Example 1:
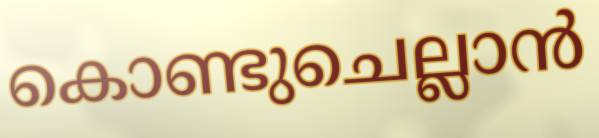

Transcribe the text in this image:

കൊണ്ടുചെല്ലാൻ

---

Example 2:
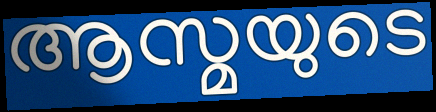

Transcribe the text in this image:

ആസ്മയുടെ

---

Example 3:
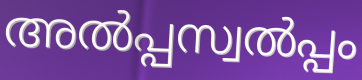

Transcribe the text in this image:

അൽപ്പസ്വൽപ്പം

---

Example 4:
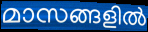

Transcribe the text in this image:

മാസങ്ങളിൽ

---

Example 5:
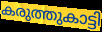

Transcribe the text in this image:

കരുത്തുകാട്ടി